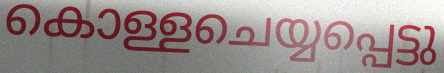
കൊള്ളചെയ്യപ്പെട്ടു